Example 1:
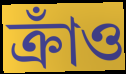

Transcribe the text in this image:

ক্রাঁও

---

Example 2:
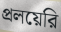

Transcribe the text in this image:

প্রলয়েরি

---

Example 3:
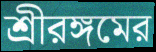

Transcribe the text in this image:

শ্রীরঙ্গমের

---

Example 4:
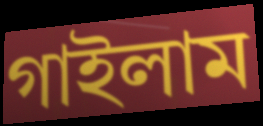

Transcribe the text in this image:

গাইলাম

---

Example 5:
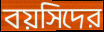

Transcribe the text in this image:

বয়সিদের